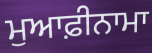
ਮੁਆਫ਼ੀਨਾਮਾ